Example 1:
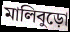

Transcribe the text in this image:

মালিবুড়ো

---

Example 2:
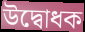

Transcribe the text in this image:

উদ্বোধক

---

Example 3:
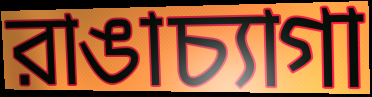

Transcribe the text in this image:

রাঙাচ্যাগা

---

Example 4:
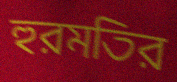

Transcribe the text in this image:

হুরমতির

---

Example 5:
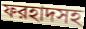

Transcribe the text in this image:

ফরহাদসহ